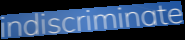
indiscriminate